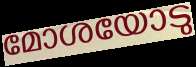
മോശയോടു